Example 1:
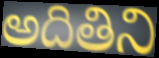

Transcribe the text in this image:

అదితిని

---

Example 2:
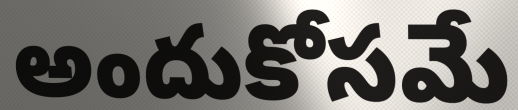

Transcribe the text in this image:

అందుకోసమే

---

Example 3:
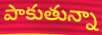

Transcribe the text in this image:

పాకుతున్నా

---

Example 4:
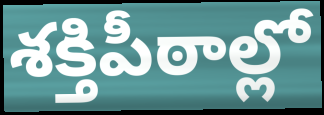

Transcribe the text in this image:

శక్తిపీఠాల్లో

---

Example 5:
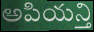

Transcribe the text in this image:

అపియన్తి